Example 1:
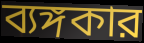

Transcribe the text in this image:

ব্যঙ্গকার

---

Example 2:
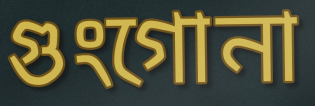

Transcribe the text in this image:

গুংগোনা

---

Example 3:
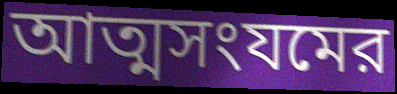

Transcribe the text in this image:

আত্মসংযমের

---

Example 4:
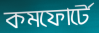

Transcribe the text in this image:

কমফোর্টে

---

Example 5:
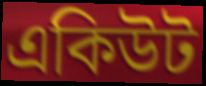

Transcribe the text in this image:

একিউট